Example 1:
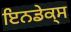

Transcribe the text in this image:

ਇਨਡੇਕ੍ਸ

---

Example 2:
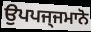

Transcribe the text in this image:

ਉਪਪਜ੍ਜਮਾਨੋ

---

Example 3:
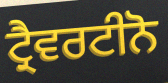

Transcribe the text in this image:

ਟ੍ਰੈਵਰਟੀਨੋ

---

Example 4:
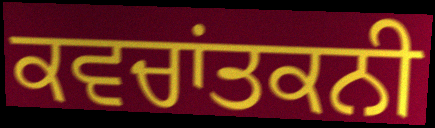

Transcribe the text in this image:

ਕਵਚਾਂਤਕਨੀ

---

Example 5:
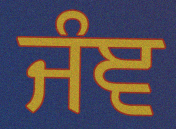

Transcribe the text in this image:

ਜੰਞ